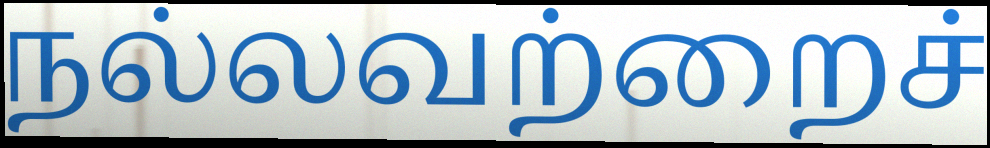
நல்லவற்றைச்